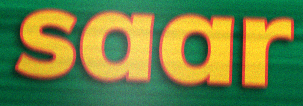
saar